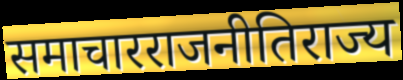
समाचारराजनीतिराज्य